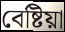
বেষ্টিয়া